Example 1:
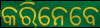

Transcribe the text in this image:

କରିନେବେ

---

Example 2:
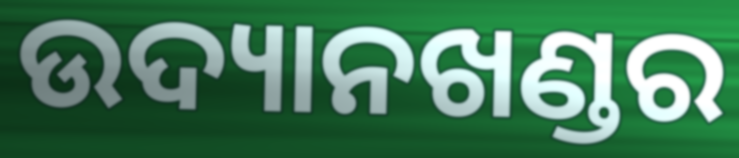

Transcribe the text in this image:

ଉଦ୍ୟାନଖଣ୍ଡର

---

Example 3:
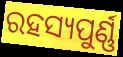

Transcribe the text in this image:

ରହସ୍ୟପୁର୍ଣ୍ଣ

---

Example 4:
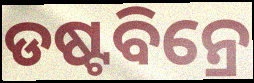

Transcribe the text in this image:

ଡଷ୍ଟବିନ୍ରେ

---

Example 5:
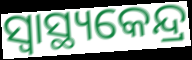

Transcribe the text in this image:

ସ୍ୱାସ୍ଥ୍ୟକେନ୍ଦ୍ର